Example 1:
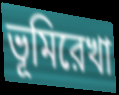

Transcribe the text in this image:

ভূমিরেখা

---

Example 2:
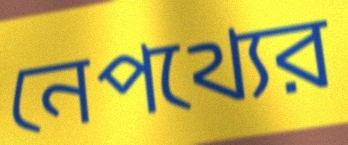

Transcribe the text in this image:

নেপথ্যের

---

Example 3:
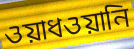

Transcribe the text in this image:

ওয়াধওয়ানি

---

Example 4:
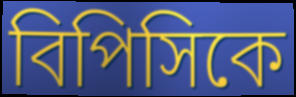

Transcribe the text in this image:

বিপিসিকে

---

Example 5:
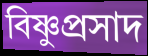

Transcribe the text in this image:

বিষ্ণুপ্রসাদ